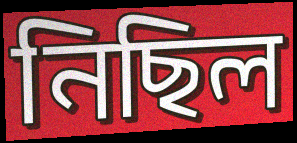
নিছিল